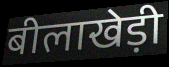
बीलाखेड़ी